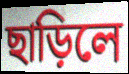
ছাড়িলে